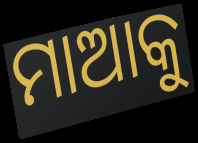
ମାଆକୁ